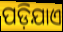
ପଡ଼ିଯାଏ